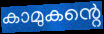
കാമുകന്റെ